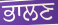
ਭਾਲਣ